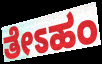
ತೇಽಹಂ